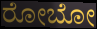
ರೋಬೋ